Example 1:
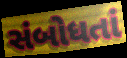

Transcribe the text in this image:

સંબોધતાં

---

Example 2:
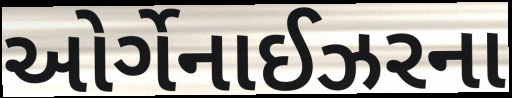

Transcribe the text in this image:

ઓર્ગેનાઈઝરના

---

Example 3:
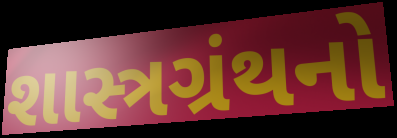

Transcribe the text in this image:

શાસ્ત્રગ્રંથનો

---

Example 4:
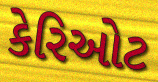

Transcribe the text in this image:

કેરિઓટ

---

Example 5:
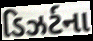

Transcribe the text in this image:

ડિઝર્ટના